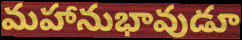
మహానుభావుడూ